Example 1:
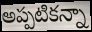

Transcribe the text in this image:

అప్పటికన్నా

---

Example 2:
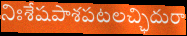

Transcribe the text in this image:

నిఃశేషపాశపటలచ్ఛిదురా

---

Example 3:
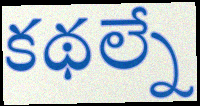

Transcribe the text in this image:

కథల్నే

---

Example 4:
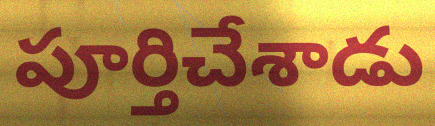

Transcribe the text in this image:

పూర్తిచేశాడు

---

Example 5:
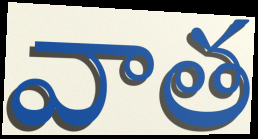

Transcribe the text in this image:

వాత